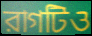
রাগটিও